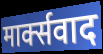
मार्क्सवाद